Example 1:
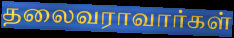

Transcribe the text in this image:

தலைவராவார்கள்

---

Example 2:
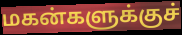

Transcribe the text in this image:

மகன்களுக்குச்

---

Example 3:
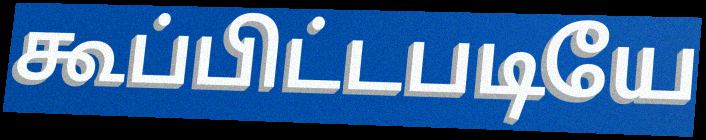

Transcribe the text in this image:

கூப்பிட்டபடியே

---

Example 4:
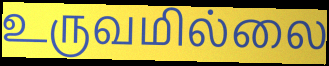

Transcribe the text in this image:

உருவமில்லை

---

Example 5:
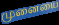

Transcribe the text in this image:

முனையை